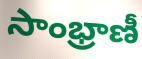
సాంభ్రాణీ